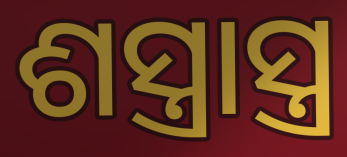
ଶସ୍ତ୍ରାସ୍ତ୍ର